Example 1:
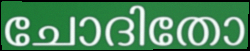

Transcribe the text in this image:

ചോദിതോ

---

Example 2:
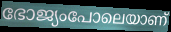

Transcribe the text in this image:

ഭോജ്യംപോലെയാണ്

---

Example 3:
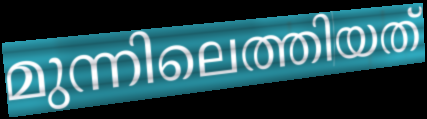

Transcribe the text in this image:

മുന്നിലെത്തിയത്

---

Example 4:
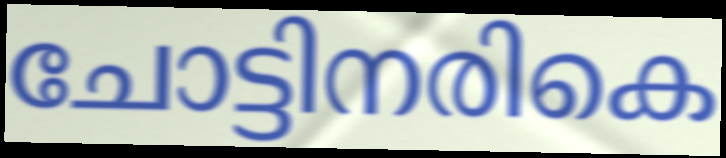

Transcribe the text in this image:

ചോട്ടിനരികെ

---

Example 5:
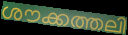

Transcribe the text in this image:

ശൗക്കത്തലി